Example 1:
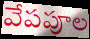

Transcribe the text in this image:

వేపపూల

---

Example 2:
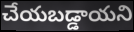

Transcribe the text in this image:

చేయబడ్డాయని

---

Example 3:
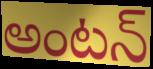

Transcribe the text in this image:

అంటన్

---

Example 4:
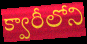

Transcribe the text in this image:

క్వారీలోని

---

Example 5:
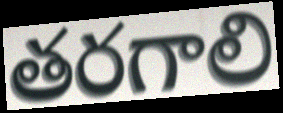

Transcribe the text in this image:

తరగాలి